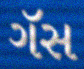
ગૅસ